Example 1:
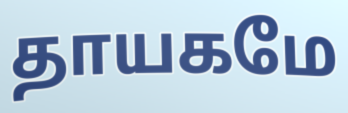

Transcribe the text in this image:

தாயகமே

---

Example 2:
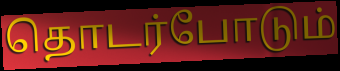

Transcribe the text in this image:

தொடர்போடும்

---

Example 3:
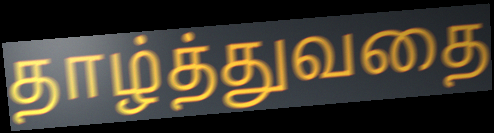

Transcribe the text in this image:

தாழ்த்துவதை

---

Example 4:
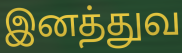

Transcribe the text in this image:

இனத்துவ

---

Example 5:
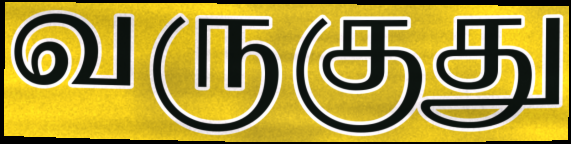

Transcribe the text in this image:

வருகுது